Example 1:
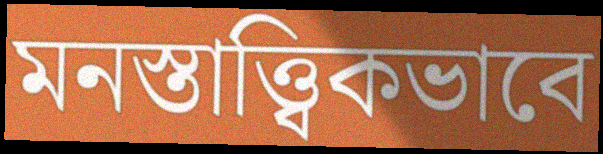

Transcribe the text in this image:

মনস্তাত্ত্বিকভাবে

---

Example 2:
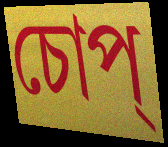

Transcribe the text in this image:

চোপ্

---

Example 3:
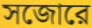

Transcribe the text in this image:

সজোরে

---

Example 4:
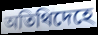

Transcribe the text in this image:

অতিথিদেহে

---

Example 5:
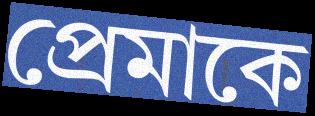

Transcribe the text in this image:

প্রেমাকে